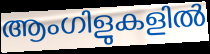
ആംഗിളുകളിൽ